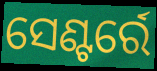
ସେଣ୍ଟର୍ରେ